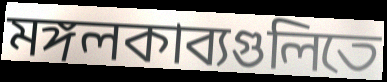
মঙ্গলকাব্যগুলিতে